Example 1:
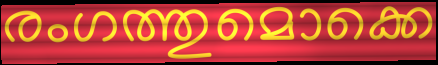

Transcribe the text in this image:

രംഗത്തുമൊക്കെ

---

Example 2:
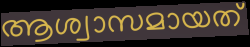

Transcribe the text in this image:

ആശ്വാസമായത്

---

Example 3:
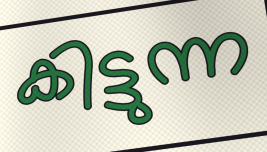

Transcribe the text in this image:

കിട്ടുന്ന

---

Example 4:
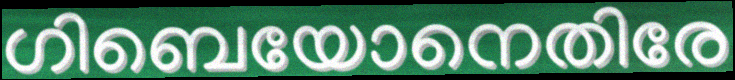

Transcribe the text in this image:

ഗിബെയോനെതിരേ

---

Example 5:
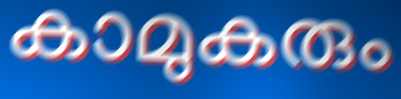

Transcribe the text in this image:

കാമുകരും